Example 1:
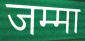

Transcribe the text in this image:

जम्मा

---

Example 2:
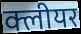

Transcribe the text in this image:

क्लीयर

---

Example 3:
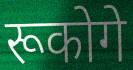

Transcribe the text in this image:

रूकोगे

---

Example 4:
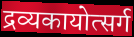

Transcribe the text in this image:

द्रव्यकायोत्सर्ग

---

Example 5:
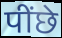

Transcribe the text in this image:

पींछे